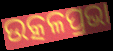
ଉତ୍କଳପ୍ରଭା